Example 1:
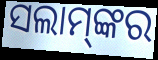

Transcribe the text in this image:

ସଲାମ୍‌ଙ୍କର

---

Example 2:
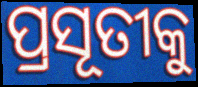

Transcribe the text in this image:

ପ୍ରସୂତୀକୁ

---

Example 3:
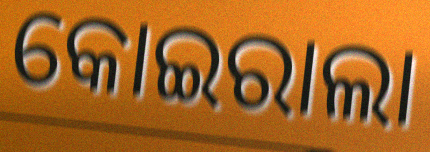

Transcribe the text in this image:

କୋଇରାଲା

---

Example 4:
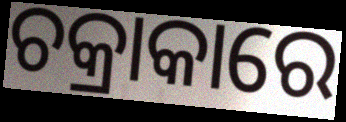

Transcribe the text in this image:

ଚକ୍ରାକାରେ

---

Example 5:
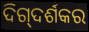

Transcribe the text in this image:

ଦିଗ୍‌ଦର୍ଶକର